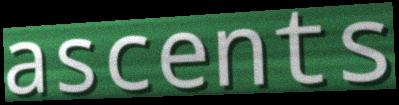
ascents